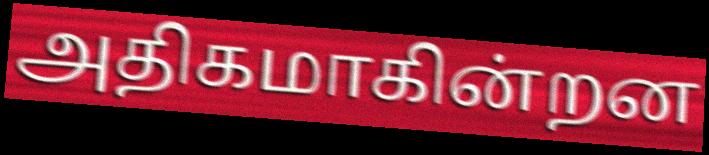
அதிகமாகின்றன